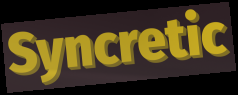
Syncretic